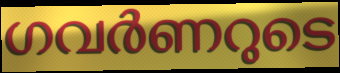
ഗവർണറുടെ